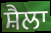
ਸ਼ੈਲਾ